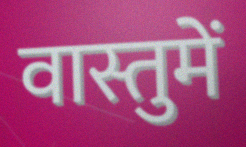
वास्तुमें